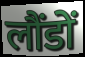
लौंडों